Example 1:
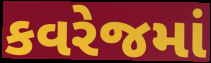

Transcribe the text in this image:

કવરેજમાં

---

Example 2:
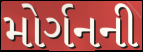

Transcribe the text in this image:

મોર્ગનની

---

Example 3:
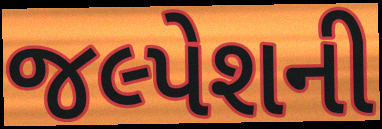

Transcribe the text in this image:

જલ્પેશની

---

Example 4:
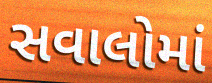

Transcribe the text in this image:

સવાલોમાં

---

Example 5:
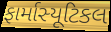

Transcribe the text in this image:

ફાર્માસ્યૂટિકલ